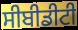
ਸੀਬੀਡੀਟੀ